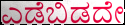
ಎಡೆಬಿಡದೇ